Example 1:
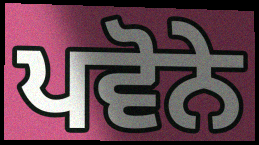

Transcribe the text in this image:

ਪਵੋਨੇ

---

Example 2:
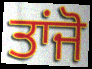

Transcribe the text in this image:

ਤਾਂਜੋ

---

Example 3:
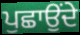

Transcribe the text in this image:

ਪੁਛਾਉਂਦੇ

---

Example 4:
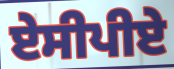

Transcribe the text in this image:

ਏਸੀਪੀਏ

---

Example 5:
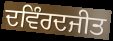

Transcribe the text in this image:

ਦਵਿੰਰਦਜੀਤ